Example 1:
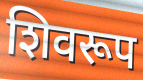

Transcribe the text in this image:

शिवरूप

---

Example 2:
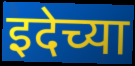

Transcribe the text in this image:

इदेच्या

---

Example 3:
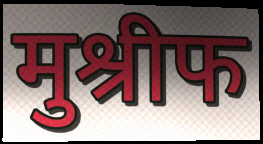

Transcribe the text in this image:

मुश्रीफ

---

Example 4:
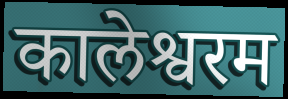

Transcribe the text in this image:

कालेश्वरम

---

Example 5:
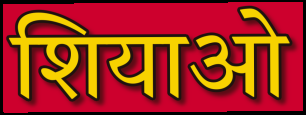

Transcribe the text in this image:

शियाओ